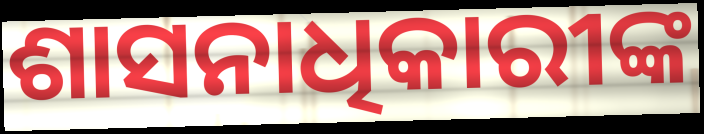
ଶାସନାଧିକାରୀଙ୍କ